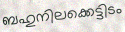
ബഹുനിലക്കെട്ടിടം